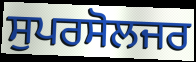
ਸੁਪਰਸੋਲਜਰ